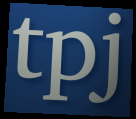
tpj